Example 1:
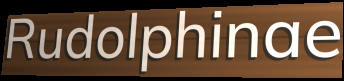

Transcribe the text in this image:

Rudolphinae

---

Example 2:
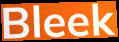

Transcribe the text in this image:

Bleek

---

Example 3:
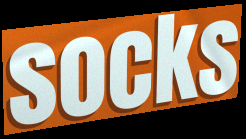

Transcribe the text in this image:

socks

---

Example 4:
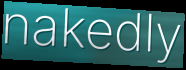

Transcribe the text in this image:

nakedly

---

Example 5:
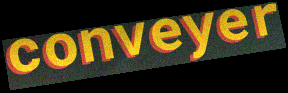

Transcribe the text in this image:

conveyer